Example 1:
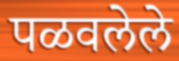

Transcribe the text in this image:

पळवलेले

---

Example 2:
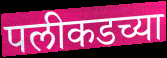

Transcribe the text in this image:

पलीकडच्या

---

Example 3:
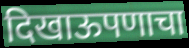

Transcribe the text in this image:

दिखाऊपणाचा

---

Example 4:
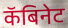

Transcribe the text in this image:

कॅबिनेट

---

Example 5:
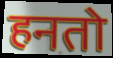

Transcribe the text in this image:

हनतो